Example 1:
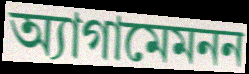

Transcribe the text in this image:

অ্যাগামেমনন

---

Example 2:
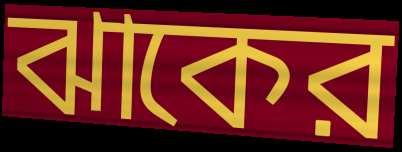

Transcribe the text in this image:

ঝাকের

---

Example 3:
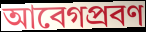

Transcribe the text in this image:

আবেগপ্রবণ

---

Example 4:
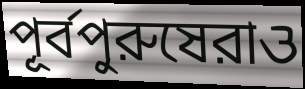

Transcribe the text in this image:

পূর্বপুরুষেরাও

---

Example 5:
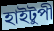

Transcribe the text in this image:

হাইটুপী